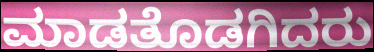
ಮಾಡತೊಡಗಿದರು